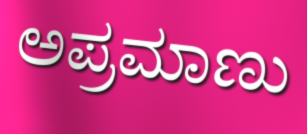
ಅಪ್ರಮಾಣು